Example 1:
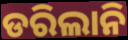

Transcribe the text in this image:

ଡରିଲାନି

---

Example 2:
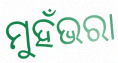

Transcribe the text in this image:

ମୁହଁଭରା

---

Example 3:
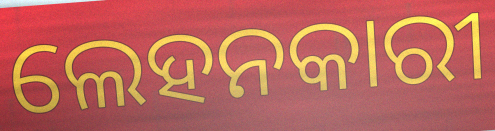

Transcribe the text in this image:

ଲେହନକାରୀ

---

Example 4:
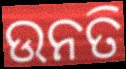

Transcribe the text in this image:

ଉନତି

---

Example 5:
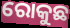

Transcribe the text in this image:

ରୋକୁଛ